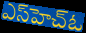
ఎస్‌హెచ్ఓ